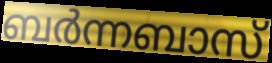
ബർന്നബാസ്